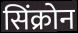
सिंक्रोन